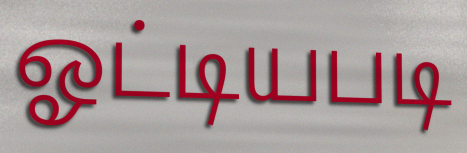
ஓட்டியபடி